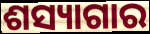
ଶସ୍ୟାଗାର